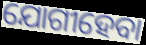
ଯୋଗୀହେବା